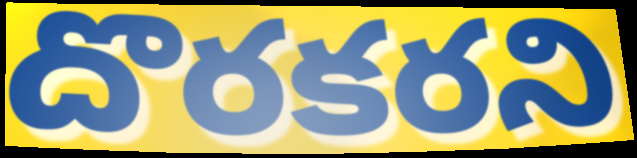
దొరకరని